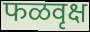
फळवृक्ष